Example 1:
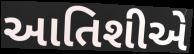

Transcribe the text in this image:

આતિશીએ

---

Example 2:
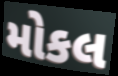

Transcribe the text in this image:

મોકલ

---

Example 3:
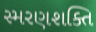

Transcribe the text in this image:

સ્મરણશક્તિ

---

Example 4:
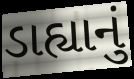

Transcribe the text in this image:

ડાહ્યાનું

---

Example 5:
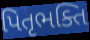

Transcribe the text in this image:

પિતૃભક્તિ